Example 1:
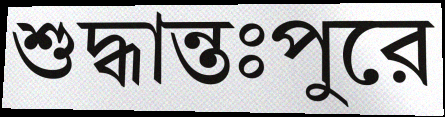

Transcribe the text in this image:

শুদ্ধান্তঃপুরে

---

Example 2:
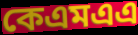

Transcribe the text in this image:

কেএমএএ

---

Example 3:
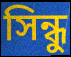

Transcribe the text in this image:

সিন্ধু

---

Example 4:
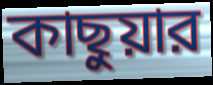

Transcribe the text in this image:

কাছুয়ার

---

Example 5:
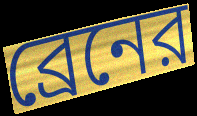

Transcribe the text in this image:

ব্রেনের